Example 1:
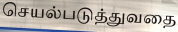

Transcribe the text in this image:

செயல்படுத்துவதை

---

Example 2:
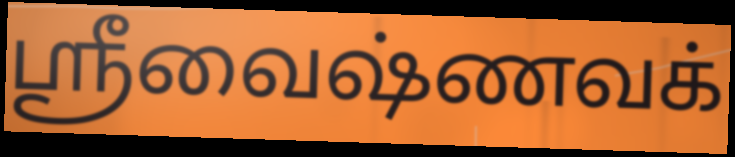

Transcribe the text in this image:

ஸ்ரீவைஷ்ணவக்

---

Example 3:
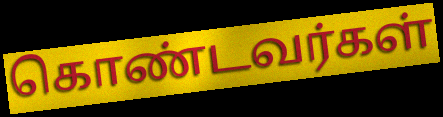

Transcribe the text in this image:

கொண்டவர்கள்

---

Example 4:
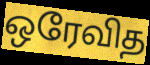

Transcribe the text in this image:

ஒரேவித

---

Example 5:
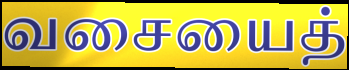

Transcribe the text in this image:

வசையைத்